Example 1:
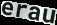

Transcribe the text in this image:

erau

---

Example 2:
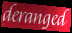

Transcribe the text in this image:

deranged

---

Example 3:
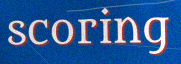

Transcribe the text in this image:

scoring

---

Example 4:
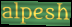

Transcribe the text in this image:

alpesh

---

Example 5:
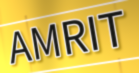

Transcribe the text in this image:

AMRIT